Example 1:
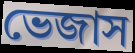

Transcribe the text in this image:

ভেজাস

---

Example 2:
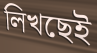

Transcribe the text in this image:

লিখছেই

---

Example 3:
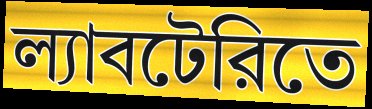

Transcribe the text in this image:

ল্যাবটেরিতে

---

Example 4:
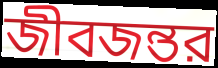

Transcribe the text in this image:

জীবজন্তর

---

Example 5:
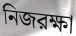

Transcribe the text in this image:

নিজরক্ষা